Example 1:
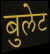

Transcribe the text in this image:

बुलेट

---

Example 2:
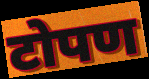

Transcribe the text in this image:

टोपण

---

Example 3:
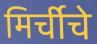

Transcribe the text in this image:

मिर्चीचे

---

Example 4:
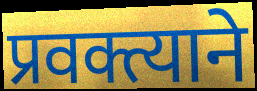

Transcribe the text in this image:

प्रवक्त्याने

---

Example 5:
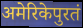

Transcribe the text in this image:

अमेरिकेपुरतं